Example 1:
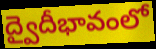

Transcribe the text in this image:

ద్వైదీభావంలో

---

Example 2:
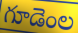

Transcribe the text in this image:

గూడెంల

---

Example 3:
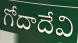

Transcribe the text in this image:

గోదాదేవి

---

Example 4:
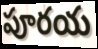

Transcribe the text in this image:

పూరయ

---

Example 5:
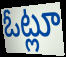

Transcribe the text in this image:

ఓట్లూ